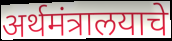
अर्थमंत्रालयाचे